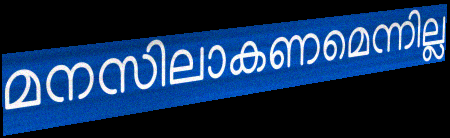
മനസിലാകണമെന്നില്ല